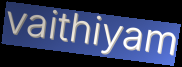
vaithiyam